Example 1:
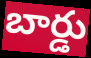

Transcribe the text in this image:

బార్డు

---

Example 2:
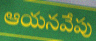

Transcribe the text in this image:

ఆయనవేపు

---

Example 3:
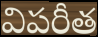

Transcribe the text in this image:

విపరీత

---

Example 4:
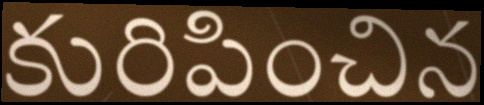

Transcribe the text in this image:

కురిపించిన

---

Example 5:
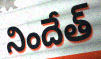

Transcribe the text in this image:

నిందేత్